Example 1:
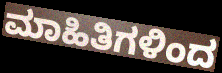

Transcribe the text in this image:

ಮಾಹಿತಿಗಳಿಂದ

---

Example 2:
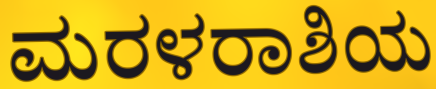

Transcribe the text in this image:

ಮರಳರಾಶಿಯ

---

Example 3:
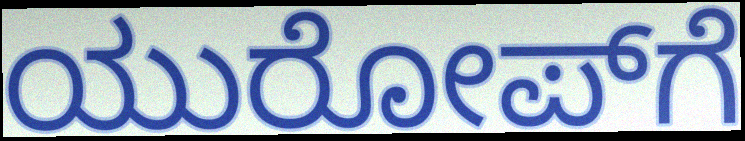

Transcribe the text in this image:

ಯುರೋಪ್‌ಗೆ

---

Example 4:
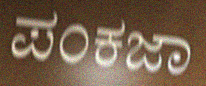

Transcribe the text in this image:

ಪಂಕಜಾ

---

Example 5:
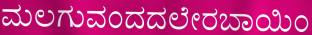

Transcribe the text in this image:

ಮಲಗುವಂದದಲೇರಬಾಯಿಂ